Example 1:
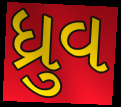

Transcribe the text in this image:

ધ્રુવ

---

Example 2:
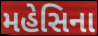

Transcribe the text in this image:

મહેસિના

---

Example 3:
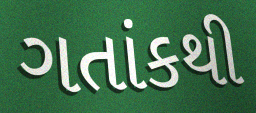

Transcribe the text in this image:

ગતાંકથી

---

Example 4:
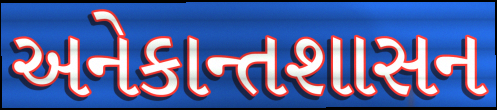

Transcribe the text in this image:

અનેકાન્તશાસન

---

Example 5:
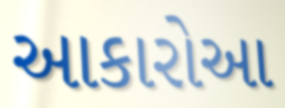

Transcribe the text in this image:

આકારોઆ